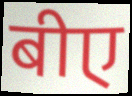
बीए